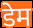
डेम